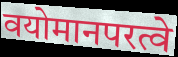
वयोमानपरत्वे